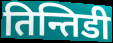
तिन्तिडी